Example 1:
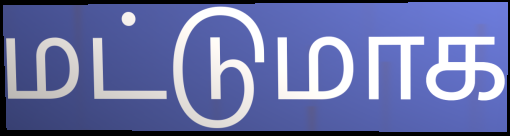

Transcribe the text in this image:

மட்டுமாக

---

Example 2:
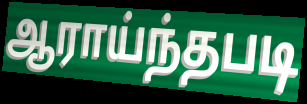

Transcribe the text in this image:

ஆராய்ந்தபடி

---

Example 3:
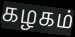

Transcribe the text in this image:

கழகம்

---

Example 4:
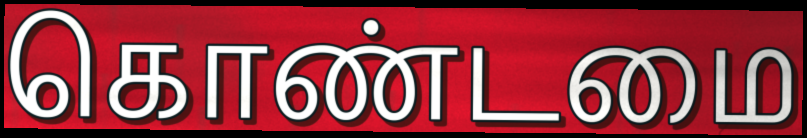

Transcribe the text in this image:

கொண்டமை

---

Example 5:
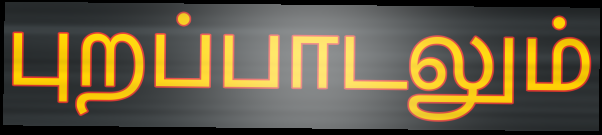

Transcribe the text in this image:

புறப்பாடலும்